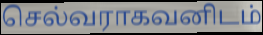
செல்வராகவனிடம்